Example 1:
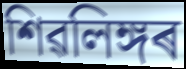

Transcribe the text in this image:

শিৱলিঙ্গৰ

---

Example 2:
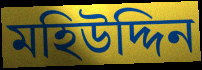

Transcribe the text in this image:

মহিউদ্দিন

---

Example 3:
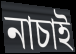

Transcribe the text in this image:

নাচাই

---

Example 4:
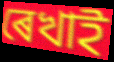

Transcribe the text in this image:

ৰেখাই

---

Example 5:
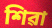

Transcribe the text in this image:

শিৱা